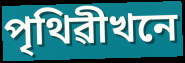
পৃথিৱীখনে